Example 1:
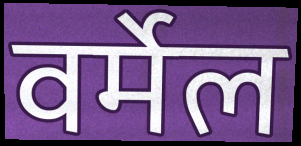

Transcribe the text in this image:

वर्मेल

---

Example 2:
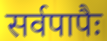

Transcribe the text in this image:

सर्वपापैः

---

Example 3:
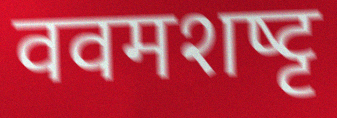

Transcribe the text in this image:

ववमशष्ट्ट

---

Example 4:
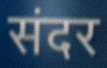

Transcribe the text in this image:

संदर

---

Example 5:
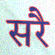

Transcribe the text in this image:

सरै